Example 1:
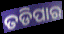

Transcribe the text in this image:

ତଡିପାର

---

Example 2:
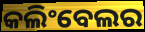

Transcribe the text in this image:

କଲିଂବେଲର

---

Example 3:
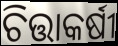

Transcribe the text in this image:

ଚିତ୍ତାକର୍ଷୀ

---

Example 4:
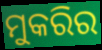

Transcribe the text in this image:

ମୁକରିର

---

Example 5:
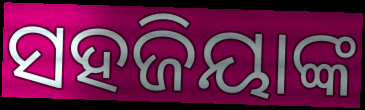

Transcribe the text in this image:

ସହଜିୟାଙ୍କ